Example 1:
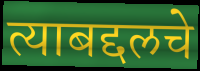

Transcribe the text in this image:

त्याबद्दलचे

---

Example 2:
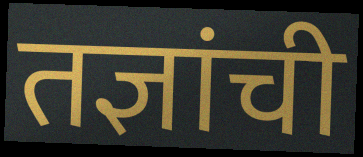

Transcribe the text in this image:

तज्ञांची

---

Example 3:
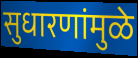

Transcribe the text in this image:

सुधारणांमुळे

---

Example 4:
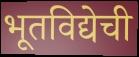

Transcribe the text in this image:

भूतविद्येची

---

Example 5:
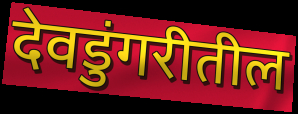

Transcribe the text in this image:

देवडुंगरीतील